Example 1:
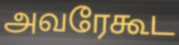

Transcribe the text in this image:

அவரேகூட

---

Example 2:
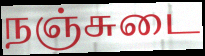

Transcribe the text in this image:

நஞ்சுடை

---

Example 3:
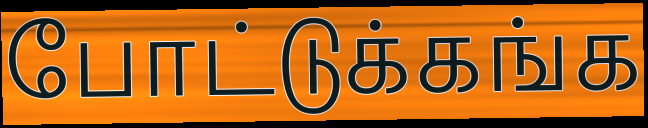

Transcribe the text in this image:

போட்டுக்கங்க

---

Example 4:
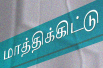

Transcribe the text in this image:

மாத்திக்கிட்டு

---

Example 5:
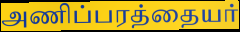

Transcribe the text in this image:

அணிப்பரத்தையர்